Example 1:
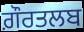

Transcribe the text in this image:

ਗ਼ੌਰਤਲਬ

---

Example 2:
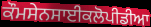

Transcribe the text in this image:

ਕੌਮਸੇਨਸਾਈਕਲੋਪੀਡੀਆ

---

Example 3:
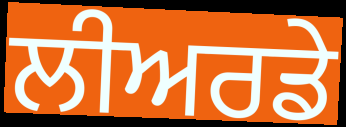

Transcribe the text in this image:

ਲੀਅਰਡੇ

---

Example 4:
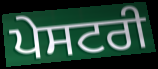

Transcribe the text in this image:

ਪੇਸਟਰੀ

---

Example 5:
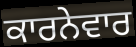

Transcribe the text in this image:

ਕਾਰਨੇਵਾਰ